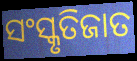
ସଂସ୍କୃତିଜାତ